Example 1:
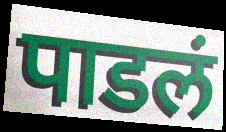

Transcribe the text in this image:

पाडलं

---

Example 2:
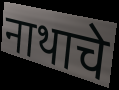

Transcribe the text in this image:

नाथाचे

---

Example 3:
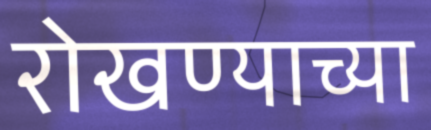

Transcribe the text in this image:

रोखण्याच्या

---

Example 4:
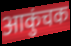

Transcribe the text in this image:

आकुंचक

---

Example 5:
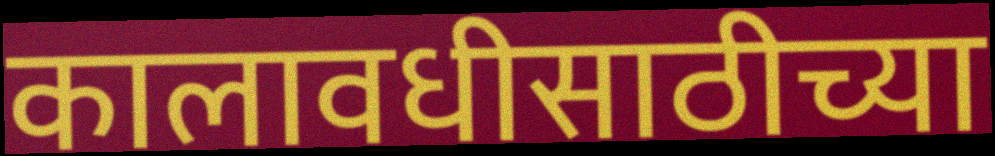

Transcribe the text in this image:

कालावधीसाठीच्या